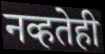
नव्हतेही